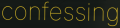
confessing